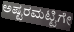
ಅಷ್ಟರಮಟ್ಟಿಗೇ